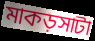
মাকড়সাটা